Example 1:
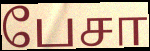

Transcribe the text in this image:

பேசா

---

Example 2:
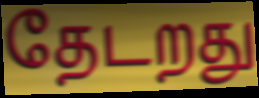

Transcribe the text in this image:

தேடறது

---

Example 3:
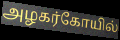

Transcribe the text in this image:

அழகர்கோயில்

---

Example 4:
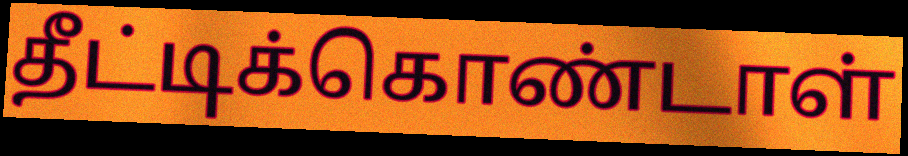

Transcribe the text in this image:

தீட்டிக்கொண்டாள்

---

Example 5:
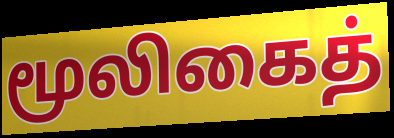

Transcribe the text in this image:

மூலிகைத்